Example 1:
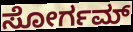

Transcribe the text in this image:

ಸೋರ್ಗಮ್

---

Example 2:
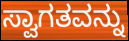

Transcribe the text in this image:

ಸ್ವಾಗತವನ್ನು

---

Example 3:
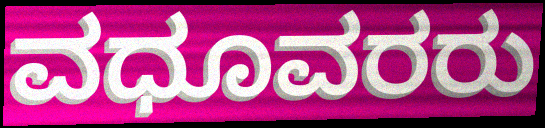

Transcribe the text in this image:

ವಧೂವರರು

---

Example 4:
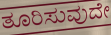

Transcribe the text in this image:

ತೂರಿಸುವುದೇ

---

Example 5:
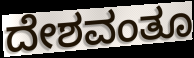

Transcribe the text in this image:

ದೇಶವಂತೂ